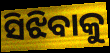
ସିଝିବାକୁ